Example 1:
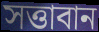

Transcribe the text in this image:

সত্তাবান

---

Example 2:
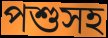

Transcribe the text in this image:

পশুসহ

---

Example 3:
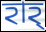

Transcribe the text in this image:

হাহ্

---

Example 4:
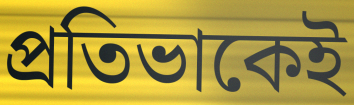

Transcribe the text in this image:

প্রতিভাকেই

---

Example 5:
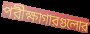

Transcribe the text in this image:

পরীক্ষাগারগুলোর